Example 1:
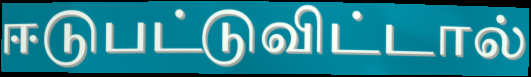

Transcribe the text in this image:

ஈடுபட்டுவிட்டால்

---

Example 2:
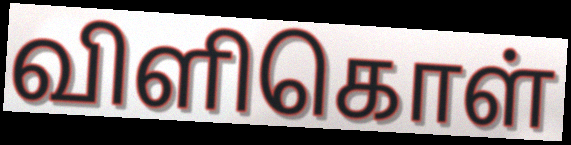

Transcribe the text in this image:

விளிகொள்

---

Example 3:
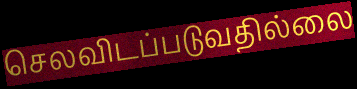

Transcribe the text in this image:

செலவிடப்படுவதில்லை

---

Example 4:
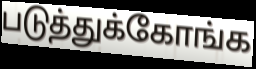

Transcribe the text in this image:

படுத்துக்கோங்க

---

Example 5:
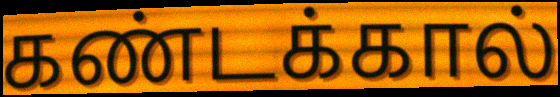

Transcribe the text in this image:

கண்டக்கால்